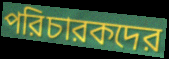
পরিচারকদের